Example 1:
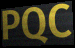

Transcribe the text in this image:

PQC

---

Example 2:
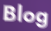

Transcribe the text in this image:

Blog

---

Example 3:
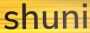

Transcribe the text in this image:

shuni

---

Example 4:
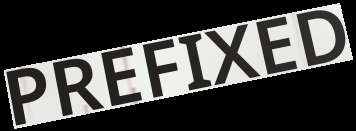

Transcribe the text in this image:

PREFIXED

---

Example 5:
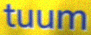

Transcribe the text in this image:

tuum